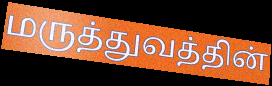
மருத்துவத்தின்